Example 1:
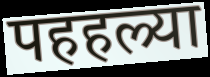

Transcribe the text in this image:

पहहल्या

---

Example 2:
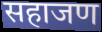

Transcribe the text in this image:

सहाजण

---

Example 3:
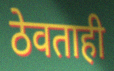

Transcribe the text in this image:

ठेवताही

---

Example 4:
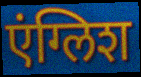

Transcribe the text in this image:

एंग्लिश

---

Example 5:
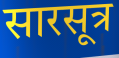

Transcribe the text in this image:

सारसूत्र